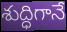
శుద్ధిగానే